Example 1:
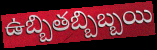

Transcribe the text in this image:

ఉబ్బితబ్బిబ్బయి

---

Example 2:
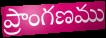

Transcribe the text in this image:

ప్రాంగణము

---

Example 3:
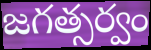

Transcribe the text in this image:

జగత్సర్వం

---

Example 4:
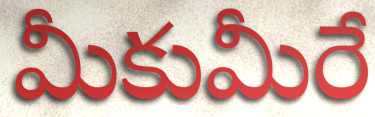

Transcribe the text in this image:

మీకుమీరే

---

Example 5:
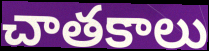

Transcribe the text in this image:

చాతకాలు